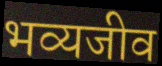
भव्यजीव